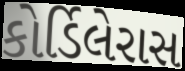
કોર્ડિલેરાસ